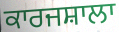
ਕਾਰਜਸ਼ਾਲਾ